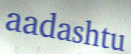
aadashtu